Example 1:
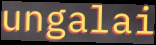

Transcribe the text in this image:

ungalai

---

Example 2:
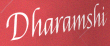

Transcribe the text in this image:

Dharamshi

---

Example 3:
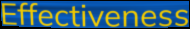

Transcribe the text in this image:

Effectiveness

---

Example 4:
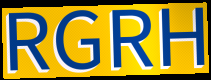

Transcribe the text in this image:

RGRH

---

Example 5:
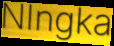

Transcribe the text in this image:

NIngka